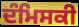
ਦੰਮਿਸਕੀ